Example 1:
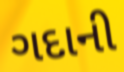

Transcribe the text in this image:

ગદાની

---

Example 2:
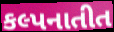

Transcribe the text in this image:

કલ્પનાતીત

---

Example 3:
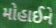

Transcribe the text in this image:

મોહાઈને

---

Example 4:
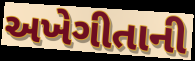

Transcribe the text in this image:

અખેગીતાની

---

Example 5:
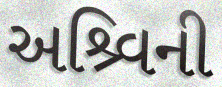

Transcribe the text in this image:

અશ્ર્વિની